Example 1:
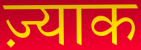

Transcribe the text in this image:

ज़्याक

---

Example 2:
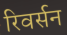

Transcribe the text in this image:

रिवर्सन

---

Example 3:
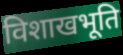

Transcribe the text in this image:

विशाखभूति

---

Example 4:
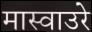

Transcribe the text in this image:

मास्वाउरे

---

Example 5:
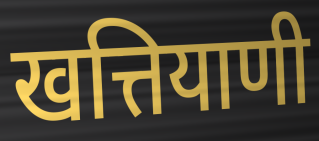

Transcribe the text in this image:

खत्तियाणी